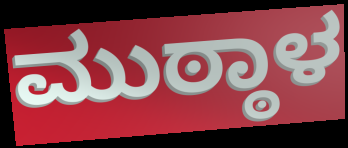
ಮುಠ್ಠಾಳ